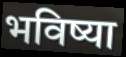
भविष्या